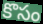
కొసం